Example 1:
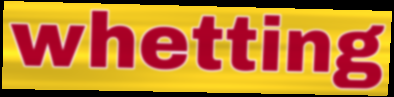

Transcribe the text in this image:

whetting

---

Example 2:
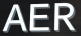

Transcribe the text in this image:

AER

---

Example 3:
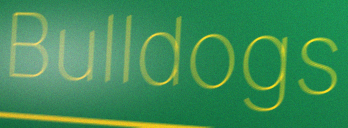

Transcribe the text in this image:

Bulldogs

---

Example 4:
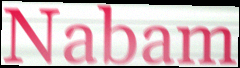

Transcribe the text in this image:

Nabam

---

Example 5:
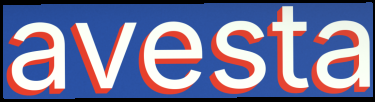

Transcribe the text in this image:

avesta